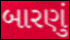
બારણું